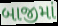
બાજીમાં